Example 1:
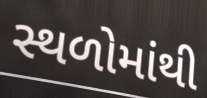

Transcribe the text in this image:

સ્થળોમાંથી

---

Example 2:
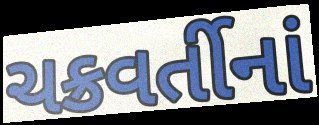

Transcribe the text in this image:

ચક્રવર્તીનાં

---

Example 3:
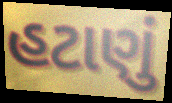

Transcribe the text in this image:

હટાણું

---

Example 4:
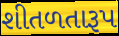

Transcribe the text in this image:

શીતળતારૂપ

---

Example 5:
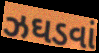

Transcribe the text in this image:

ઝઘડવાં